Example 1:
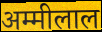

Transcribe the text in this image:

अम्मीलाल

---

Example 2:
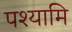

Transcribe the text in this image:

पश्यामि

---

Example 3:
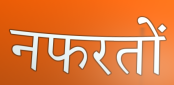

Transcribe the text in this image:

नफरतों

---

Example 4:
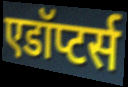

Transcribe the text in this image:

एडॉप्टर्स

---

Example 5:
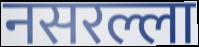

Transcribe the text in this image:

नसरल्ला